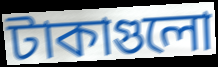
টাকাগুলো